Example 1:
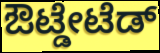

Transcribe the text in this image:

ಔಟ್ಡೇಟೆಡ್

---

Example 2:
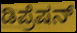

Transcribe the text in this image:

ಡಿಪ್ರೆಷನ್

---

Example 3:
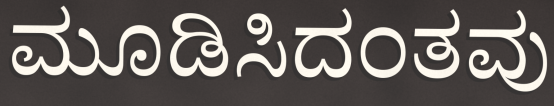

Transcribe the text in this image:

ಮೂಡಿಸಿದಂತವು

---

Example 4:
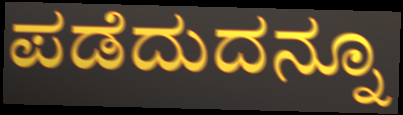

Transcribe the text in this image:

ಪಡೆದುದನ್ನೂ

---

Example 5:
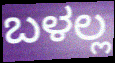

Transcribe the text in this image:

ಬಳಲ್ಲ